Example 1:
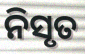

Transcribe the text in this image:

ନିସୃତ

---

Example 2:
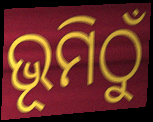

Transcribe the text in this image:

ଭୂମିଠୁଁ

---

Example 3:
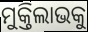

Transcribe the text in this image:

ମୁକ୍ତିଲାଭକୁ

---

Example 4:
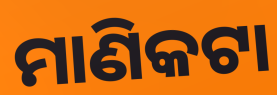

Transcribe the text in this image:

ମାଣିକଟା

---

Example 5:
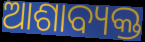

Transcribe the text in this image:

ଆଶାବ୍ୟକ୍ତ